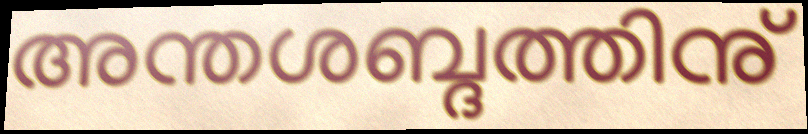
അന്തശബ്ദത്തിനു്